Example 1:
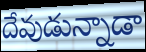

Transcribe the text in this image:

దేవుడున్నాడా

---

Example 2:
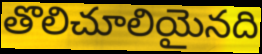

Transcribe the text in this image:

తొలిచూలియైనది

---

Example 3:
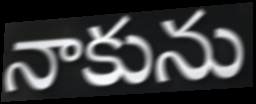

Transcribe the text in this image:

నాకును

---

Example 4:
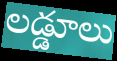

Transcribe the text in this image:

లడ్డూలు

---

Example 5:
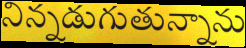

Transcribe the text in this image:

నిన్నడుగుతున్నాను